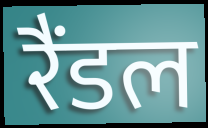
रैंडल